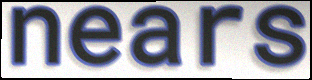
nears